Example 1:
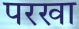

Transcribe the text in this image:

परखा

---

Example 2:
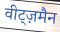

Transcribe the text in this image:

वीट्ज़मैन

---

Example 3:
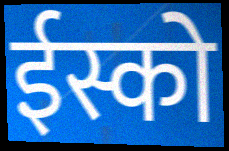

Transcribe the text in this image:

ईस्को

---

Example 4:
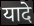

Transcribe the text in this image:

यादे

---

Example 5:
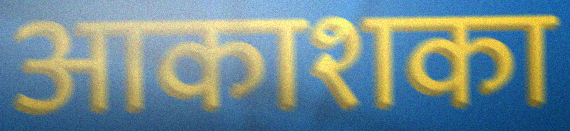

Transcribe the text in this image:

आकाशका